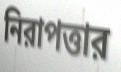
নিরাপত্তার